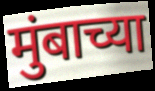
मुंबाच्या